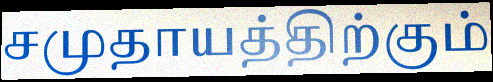
சமுதாயத்திற்கும்